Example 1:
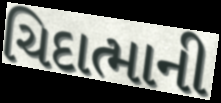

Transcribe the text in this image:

ચિદાત્માની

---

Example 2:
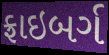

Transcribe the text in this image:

ફ્રાઇબર્ગ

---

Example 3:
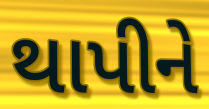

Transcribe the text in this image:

થાપીને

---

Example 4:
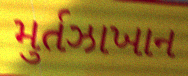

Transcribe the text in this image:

મુર્તઝાખાન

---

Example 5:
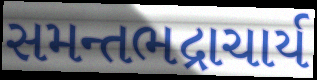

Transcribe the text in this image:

સમન્તભદ્રાચાર્ય